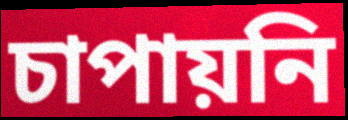
চাপায়নি